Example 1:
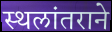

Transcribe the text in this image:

स्थलांतराने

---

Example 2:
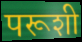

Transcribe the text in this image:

परूशी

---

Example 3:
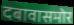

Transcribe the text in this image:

दबावासमोर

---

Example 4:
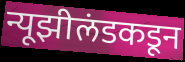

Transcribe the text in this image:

न्यूझीलंडकडून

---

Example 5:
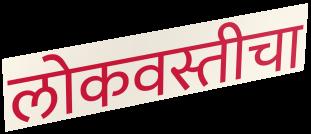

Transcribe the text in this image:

लोकवस्तीचा